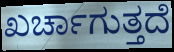
ಖರ್ಚಾಗುತ್ತದೆ